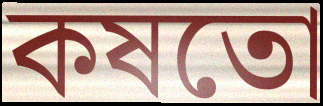
কষতো